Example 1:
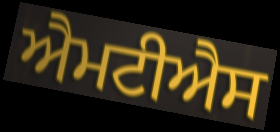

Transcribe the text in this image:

ਐਮਟੀਐਸ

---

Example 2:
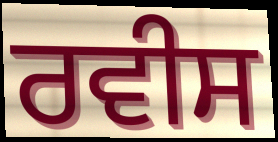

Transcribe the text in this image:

ਰਵੀਸ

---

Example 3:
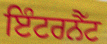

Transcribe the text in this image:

ਇੰਟਰਨੈੱਟ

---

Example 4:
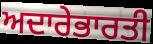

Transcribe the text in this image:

ਅਦਾਰੇਭਾਰਤੀ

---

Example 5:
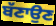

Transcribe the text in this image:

ਬੱਣਾਉਣ